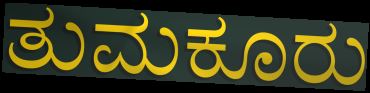
ತುಮಕೂರು